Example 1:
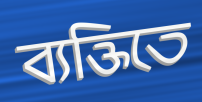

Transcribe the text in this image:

ব্যক্তিতে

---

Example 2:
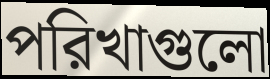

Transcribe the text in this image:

পরিখাগুলো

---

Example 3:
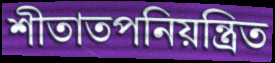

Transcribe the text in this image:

শীতাতপনিয়ন্ত্রিত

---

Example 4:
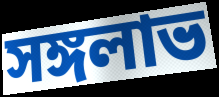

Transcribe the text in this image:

সঙ্গলাভ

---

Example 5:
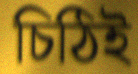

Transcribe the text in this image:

চিঠিই